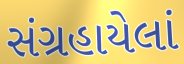
સંગ્રહાયેલાં